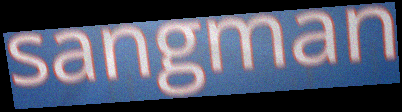
sangman